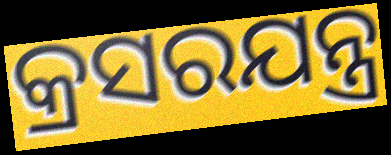
କ୍ରସରଯନ୍ତ୍ର